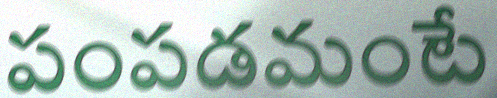
పంపడమంటే